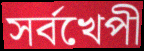
সর্বখেপী